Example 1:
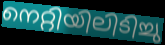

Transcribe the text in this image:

നെറ്റിയിലിടിച്ചു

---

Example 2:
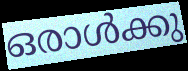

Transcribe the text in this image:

ഒരാൾക്കു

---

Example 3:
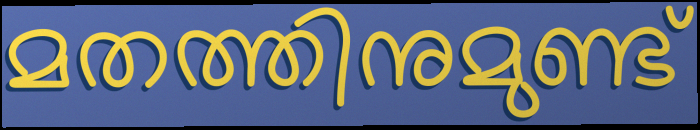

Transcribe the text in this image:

മതത്തിനുമുണ്ട്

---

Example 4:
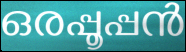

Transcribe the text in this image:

ഒരപ്പൂപ്പൻ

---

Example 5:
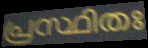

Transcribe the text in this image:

പ്രസ്ഥിതഃ